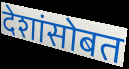
देशांसोबत